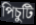
পিচুটি